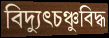
বিদ্যুৎচঞ্চুবিদ্ধ